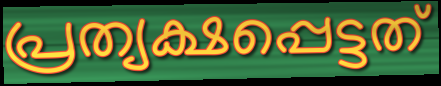
പ്രത്യക്ഷപ്പെട്ടത്